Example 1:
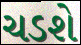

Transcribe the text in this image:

ચડશે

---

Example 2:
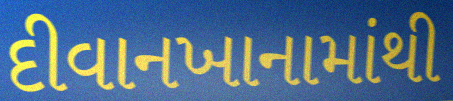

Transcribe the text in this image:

દીવાનખાનામાંથી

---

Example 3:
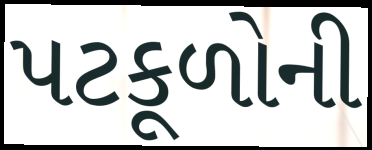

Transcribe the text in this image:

પટકૂળોની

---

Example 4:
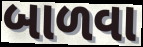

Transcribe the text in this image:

બાળવા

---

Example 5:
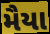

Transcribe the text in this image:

મૈયા